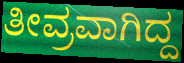
ತೀವ್ರವಾಗಿದ್ದ